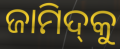
ଜାମିଦ୍‌କୁ